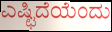
ಎಷ್ಟಿದೆಯೆಂದು